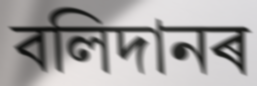
বলিদানৰ